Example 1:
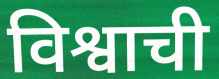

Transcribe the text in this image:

विश्वाची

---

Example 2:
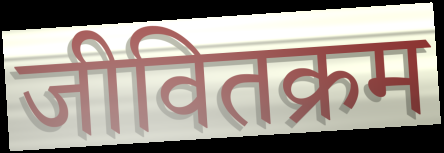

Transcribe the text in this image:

जीवितक्रम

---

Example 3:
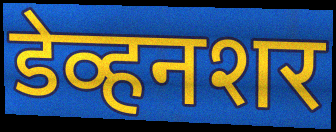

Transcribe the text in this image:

डेव्हनशर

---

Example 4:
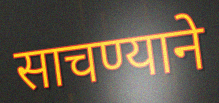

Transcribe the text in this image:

साचण्याने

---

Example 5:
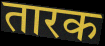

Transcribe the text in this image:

तारक